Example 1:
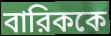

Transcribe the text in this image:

বারিককে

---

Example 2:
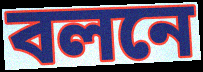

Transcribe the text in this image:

বলনে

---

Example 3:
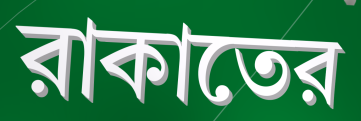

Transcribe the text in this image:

রাকাতের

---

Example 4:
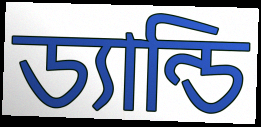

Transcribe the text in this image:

ড্যান্ডি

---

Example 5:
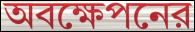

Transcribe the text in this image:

অবক্ষেপনের